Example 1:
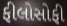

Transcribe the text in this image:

ફીલોસોફી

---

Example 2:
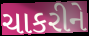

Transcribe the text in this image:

ચાકરીને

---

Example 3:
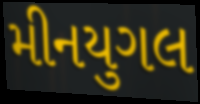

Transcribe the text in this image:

મીનયુગલ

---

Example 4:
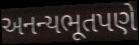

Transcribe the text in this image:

અનન્યભૂતપણે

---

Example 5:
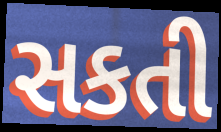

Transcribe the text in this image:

સકતી